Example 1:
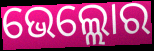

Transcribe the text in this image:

ଭେଲ୍ଲୋର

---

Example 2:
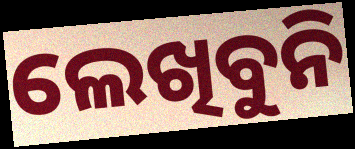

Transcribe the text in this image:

ଲେଖିବୁନି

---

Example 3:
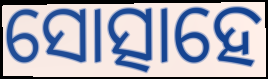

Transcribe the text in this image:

ସୋତ୍ସାହେ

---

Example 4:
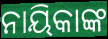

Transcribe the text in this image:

ନାୟିକାଙ୍କ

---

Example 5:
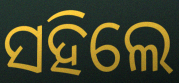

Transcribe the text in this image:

ସହିଲେ